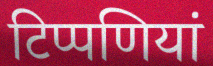
टिप्पणियां